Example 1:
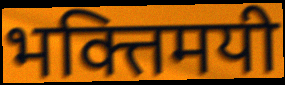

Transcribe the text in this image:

भक्तिमयी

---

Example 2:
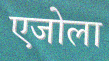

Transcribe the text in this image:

एजोला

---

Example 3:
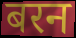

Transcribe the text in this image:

बरन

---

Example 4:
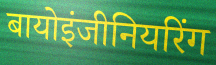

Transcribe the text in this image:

बायोइंजीनियरिंग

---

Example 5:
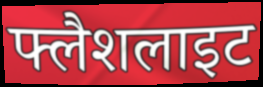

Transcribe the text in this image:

फ्लैशलाइट